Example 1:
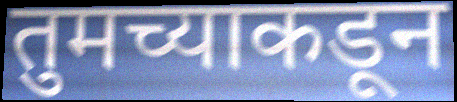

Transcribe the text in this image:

तुमच्याकडून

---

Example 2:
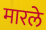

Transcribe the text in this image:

मारले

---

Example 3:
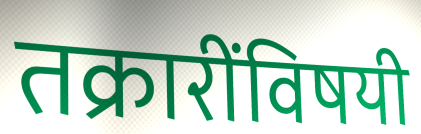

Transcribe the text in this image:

तक्रारींविषयी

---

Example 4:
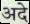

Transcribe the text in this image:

अदे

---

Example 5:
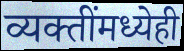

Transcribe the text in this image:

व्यक्तींमध्येही